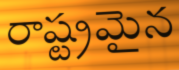
రాష్ట్రమైన